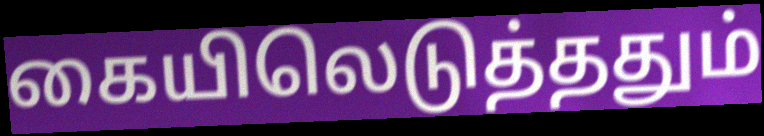
கையிலெடுத்ததும்